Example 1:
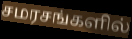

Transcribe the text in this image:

சமரசங்களில்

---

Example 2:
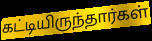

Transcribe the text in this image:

கட்டியிருந்தார்கள்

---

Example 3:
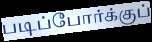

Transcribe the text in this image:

படிப்போர்க்குப்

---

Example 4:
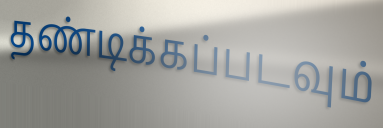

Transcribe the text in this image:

தண்டிக்கப்படவும்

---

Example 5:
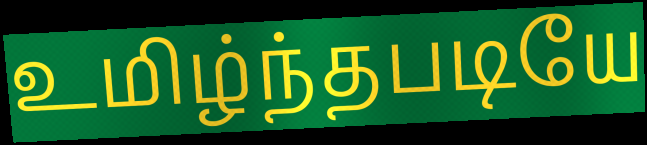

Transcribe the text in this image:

உமிழ்ந்தபடியே